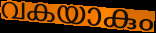
വകയാകും